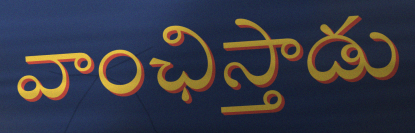
వాంఛిస్తాడు